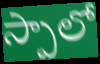
స్పాలో